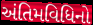
અંતિમવિધિનો